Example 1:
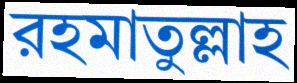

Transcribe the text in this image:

রহমাতুল্লাহ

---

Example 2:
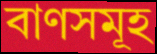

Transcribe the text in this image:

বাণসমূহ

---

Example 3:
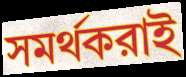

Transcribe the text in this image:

সমর্থকরাই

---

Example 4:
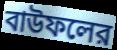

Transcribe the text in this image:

বাউফলের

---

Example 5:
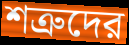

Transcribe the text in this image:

শত্রুদের